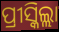
ପ୍ରୀସ୍କିଲ୍ଲା